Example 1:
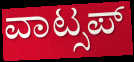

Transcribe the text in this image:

ವಾಟ್ಸಪ್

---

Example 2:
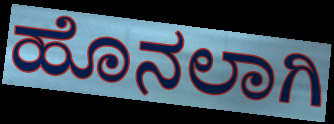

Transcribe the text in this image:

ಹೊನಲಾಗಿ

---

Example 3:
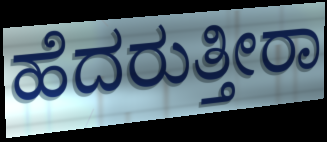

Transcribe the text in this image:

ಹೆದರುತ್ತೀರಾ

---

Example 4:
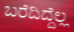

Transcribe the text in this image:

ಬರೆದಿದ್ದೆಲ್ಲ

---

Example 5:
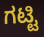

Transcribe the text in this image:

ಗಟ್ಟಿ